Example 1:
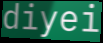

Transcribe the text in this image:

diyei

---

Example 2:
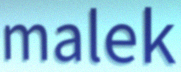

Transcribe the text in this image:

malek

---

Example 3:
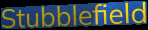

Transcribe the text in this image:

Stubblefield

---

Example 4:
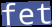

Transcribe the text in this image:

fet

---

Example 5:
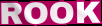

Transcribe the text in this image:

ROOK